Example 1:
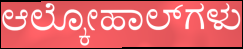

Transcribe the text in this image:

ಆಲ್ಕೋಹಾಲ್‌ಗಳು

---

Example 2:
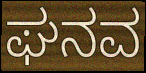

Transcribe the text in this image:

ಘನವ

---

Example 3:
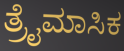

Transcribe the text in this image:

ತ್ರೈಮಾಸಿಕ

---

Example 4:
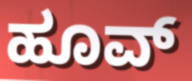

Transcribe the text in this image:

ಹೂವ್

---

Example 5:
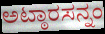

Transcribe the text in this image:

ಅಟ್ಠಾರಸನ್ನಂ